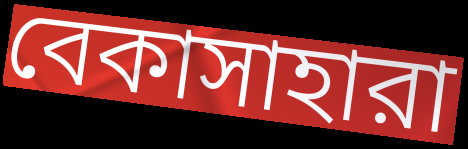
বেকাসাহারা